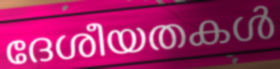
ദേശീയതകൾ